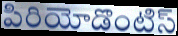
పిరియోడొంటిస్